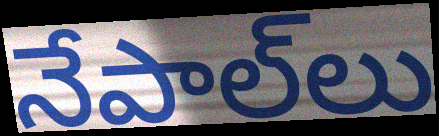
నేపాల్‌లు